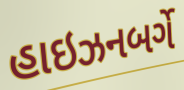
હાઇઝનબર્ગે